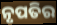
ନୃପତିର